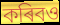
কৰিবও